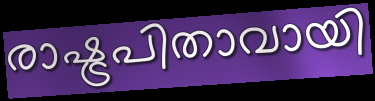
രാഷ്ട്രപിതാവായി